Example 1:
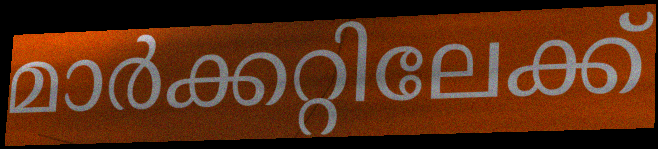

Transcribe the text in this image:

മാർക്കറ്റിലേക്ക്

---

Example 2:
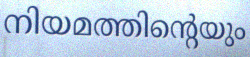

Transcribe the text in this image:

നിയമത്തിന്റെയും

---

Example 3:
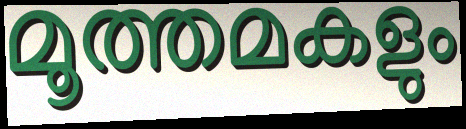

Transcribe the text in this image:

മൂത്തമകളും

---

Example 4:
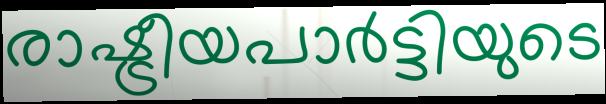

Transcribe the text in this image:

രാഷ്ട്രീയപാർട്ടിയുടെ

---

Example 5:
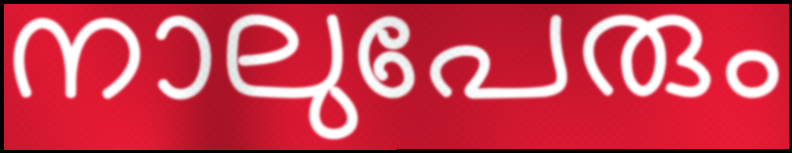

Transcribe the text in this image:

നാലുപേരും